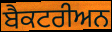
ਬੈਕਟਰੀਅਨ